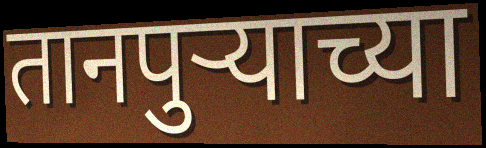
तानपुऱ्याच्या